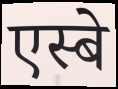
एस्बे